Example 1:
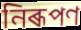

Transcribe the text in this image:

নিৰূপণ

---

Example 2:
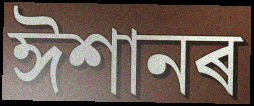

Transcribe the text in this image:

ঈশানৰ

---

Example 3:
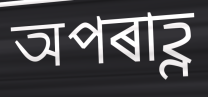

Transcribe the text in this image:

অপৰাহ্ণ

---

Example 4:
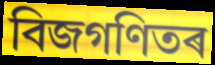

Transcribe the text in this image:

বিজগণিতৰ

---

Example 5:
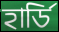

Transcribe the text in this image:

হাৰ্ডি